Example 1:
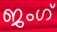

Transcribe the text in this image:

ജംഗ്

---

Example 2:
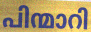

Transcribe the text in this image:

പിന്മാറി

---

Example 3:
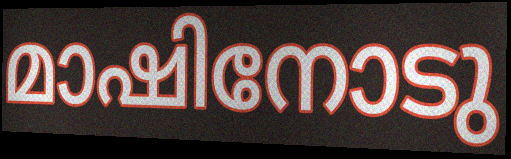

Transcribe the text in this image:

മാഷിനോടു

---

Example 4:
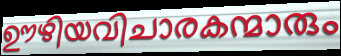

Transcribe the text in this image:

ഊഴിയവിചാരകന്മാരും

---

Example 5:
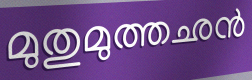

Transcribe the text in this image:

മുതുമുത്തഛൻ